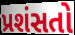
પ્રશંસતો